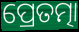
ପ୍ରେତତ୍ମା